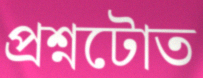
প্ৰশ্নটোত